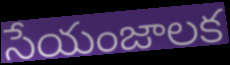
సేయంజాలక